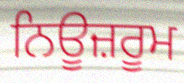
ਨਿਊਜ਼ਰੂਮ